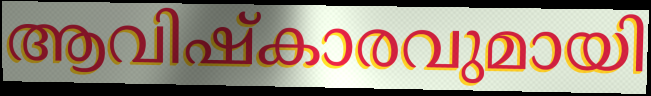
ആവിഷ്കാരവുമായി